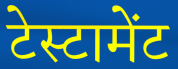
टेस्टामेंट